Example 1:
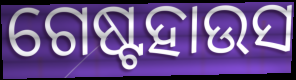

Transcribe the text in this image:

ଗେଷ୍ଟହାଉସ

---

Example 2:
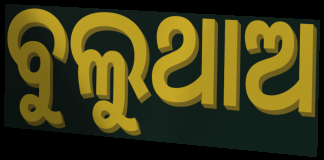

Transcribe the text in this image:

ବୁଲୁଥାଅ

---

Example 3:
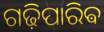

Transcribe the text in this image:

ଗଢ଼ିପାରିଵ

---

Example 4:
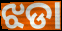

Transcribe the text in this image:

ଝଡା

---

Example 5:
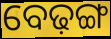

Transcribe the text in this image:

ବେଢ଼ଙ୍ଗ